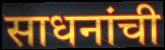
साधनांची